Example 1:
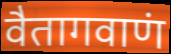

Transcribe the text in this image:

वैतागवाणं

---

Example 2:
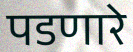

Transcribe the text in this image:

पडणारे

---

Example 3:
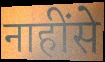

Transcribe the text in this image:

नाहींसे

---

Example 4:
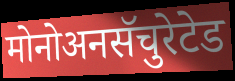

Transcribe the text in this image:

मोनोअनसॅचुरेटेड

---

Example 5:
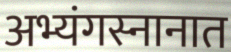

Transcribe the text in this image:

अभ्यंगस्नानात